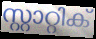
സ്റ്റാറ്റിക്